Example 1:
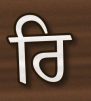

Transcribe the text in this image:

ਰਿ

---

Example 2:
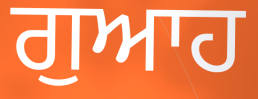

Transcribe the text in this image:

ਗੁਆਹ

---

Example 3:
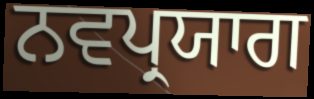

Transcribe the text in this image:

ਨਵਪ੍ਰਯਾਗ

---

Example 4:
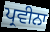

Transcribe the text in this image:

ਪ੍ਰਵੀਨਾ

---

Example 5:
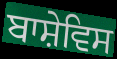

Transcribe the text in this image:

ਬਾਸ਼ੇਵਿਸ